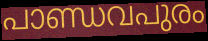
പാണ്ഡവപുരം